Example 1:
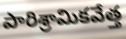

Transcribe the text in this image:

పారిశ్రామికవేత్త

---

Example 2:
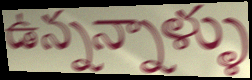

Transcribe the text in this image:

ఉన్నన్నాళ్ళు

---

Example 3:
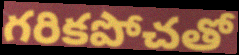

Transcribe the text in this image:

గరికపోచతో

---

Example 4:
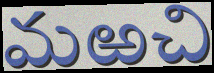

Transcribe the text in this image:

మఱచి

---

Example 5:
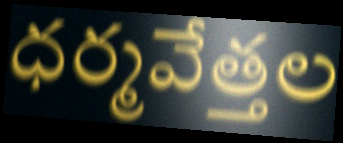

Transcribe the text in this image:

ధర్మవేత్తల